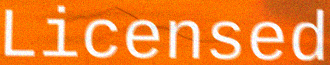
Licensed